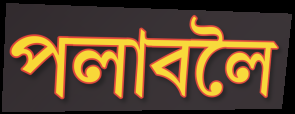
পলাবলৈ